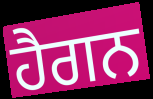
ਹੈਗਨ